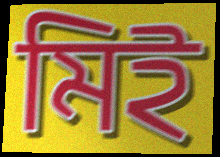
মিই